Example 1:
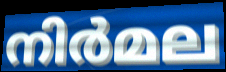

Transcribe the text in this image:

നിർമല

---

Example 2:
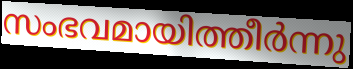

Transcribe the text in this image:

സംഭവമായിത്തീർന്നു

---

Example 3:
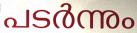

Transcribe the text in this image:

പടർന്നും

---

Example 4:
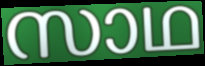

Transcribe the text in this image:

സാഥ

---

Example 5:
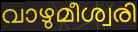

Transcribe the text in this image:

വാഴുമീശ്വരി